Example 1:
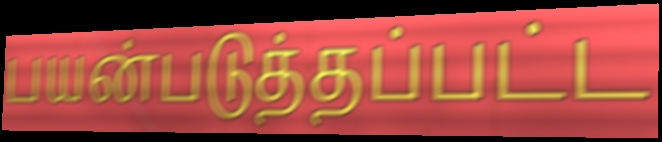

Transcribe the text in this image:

பயன்படுத்தப்பட்ட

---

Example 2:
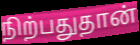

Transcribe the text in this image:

நிற்பதுதான்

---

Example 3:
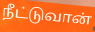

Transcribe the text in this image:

நீட்டுவான்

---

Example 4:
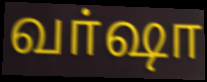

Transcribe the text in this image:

வர்ஷா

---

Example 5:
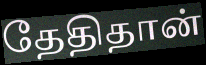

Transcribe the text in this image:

தேதிதான்